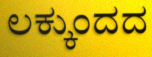
ಲಕ್ಕುಂದದ